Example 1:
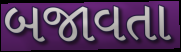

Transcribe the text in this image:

બજાવતા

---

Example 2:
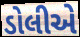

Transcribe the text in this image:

ડોલીએ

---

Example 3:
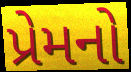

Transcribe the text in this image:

પ્રેમનો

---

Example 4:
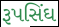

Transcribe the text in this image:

રૂપસિંઘ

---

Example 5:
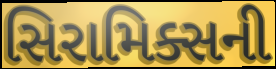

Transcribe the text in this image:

સિરામિક્સની